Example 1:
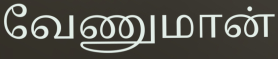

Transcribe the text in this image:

வேணுமான்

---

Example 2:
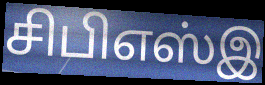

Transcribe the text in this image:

சிபிஎஸ்இ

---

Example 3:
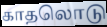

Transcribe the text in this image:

காதலொடு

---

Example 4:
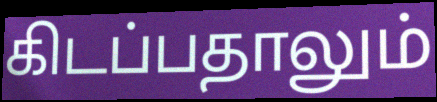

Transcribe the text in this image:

கிடப்பதாலும்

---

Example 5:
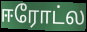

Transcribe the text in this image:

ஈரோட்ல